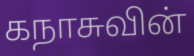
கநாசுவின்